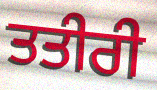
ਤਤੀਰੀ